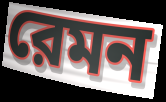
রেমন